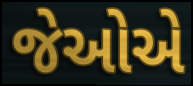
જેઓએ